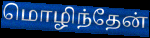
மொழிந்தேன்